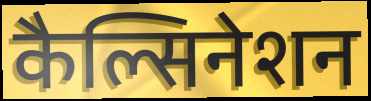
कैल्सिनेशन